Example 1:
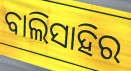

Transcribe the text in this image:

ବାଲିସାହିର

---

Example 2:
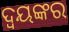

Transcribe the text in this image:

ଦ୍ବୟଙ୍କର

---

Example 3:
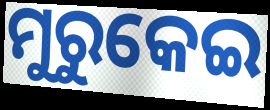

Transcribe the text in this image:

ମୁରୁକେଇ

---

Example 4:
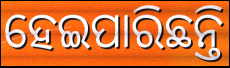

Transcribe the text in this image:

ହେଇପାରିଛନ୍ତି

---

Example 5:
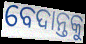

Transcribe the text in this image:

ବେଦାନ୍ତକୁ